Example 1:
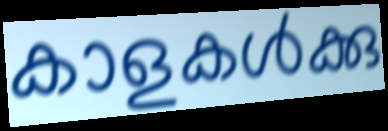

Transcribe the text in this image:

കാളകൾക്കു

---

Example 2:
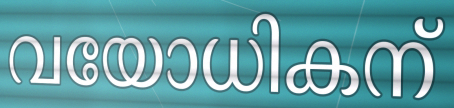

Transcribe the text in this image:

വയോധികന്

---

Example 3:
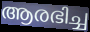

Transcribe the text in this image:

ആരഭിച്ച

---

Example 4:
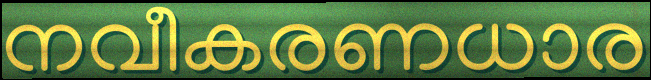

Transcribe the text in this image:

നവീകരണധാര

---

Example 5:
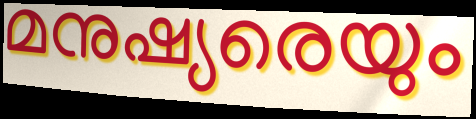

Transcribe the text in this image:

മനുഷ്യരെയും